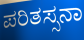
ಪರಿತಸ್ಸನಾ